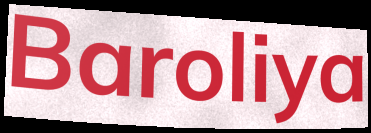
Baroliya